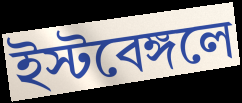
ইস্টবেঙ্গলে